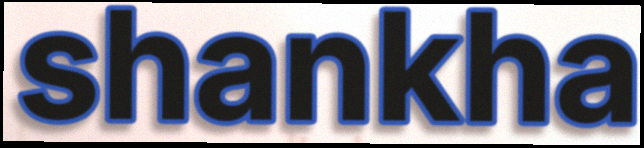
shankha